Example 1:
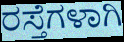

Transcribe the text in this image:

ರಸ್ತೆಗಳಾಗಿ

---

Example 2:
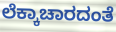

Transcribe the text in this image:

ಲೆಕ್ಕಾಚಾರದಂತೆ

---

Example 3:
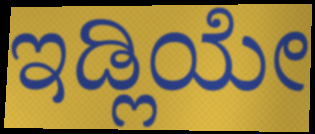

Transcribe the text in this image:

ಇಡ್ಲಿಯೇ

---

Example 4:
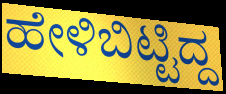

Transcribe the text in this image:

ಹೇಳಿಬಿಟ್ಟಿದ್ದ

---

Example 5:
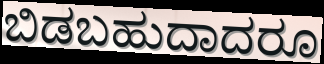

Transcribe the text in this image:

ಬಿಡಬಹುದಾದರೂ